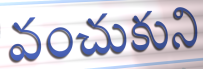
వంచుకుని